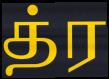
த்ர